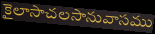
కైలాసాచలసానువాసము